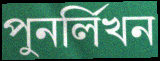
পুনর্লিখন